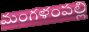
మంగళంపల్లి